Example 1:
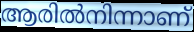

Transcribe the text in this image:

ആരിൽനിന്നാണ്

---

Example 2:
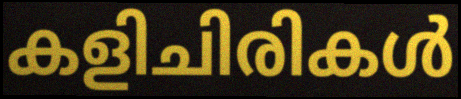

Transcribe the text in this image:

കളിചിരികൾ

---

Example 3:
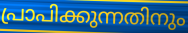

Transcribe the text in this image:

പ്രാപിക്കുന്നതിനും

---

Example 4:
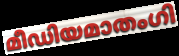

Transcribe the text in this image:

മീഡിയമാതംഗി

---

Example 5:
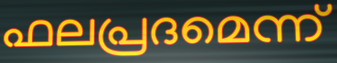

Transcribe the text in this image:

ഫലപ്രദമെന്ന്